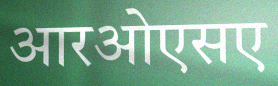
आरओएसए